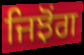
ਜਿਝੋਂਗ